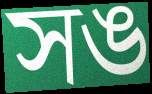
সঙ